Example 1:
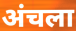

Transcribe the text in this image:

अंचला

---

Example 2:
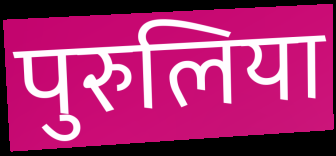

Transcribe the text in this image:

पुरुलिया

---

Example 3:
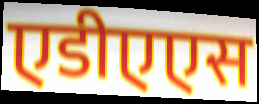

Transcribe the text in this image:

एडीएएस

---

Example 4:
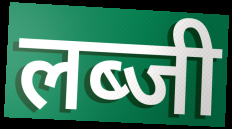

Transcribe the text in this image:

लब्जी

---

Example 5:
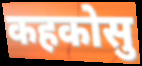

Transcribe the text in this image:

कहकोसु